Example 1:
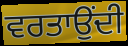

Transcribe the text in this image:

ਵਰਤਾਉਂਦੀ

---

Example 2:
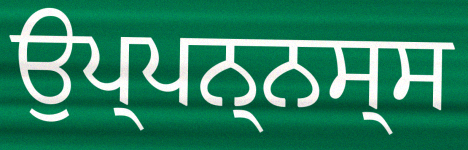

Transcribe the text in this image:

ਉਪ੍ਪਨ੍ਨਸ੍ਸ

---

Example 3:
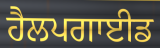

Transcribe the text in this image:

ਹੈਲਪਗਾਈਡ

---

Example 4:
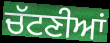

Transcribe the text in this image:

ਚੱਟਣੀਆਂ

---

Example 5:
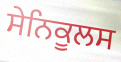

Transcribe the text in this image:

ਸੇਨਿਕੂਲਸ